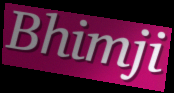
Bhimji